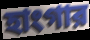
হাংগার